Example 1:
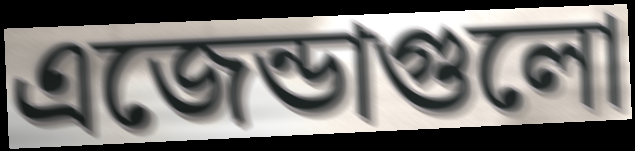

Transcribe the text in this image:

এজেন্ডাগুলো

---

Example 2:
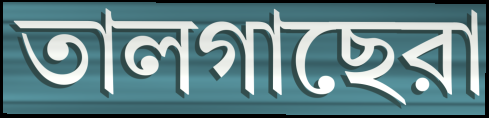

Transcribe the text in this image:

তালগাছেরা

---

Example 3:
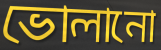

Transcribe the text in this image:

ভোলানো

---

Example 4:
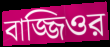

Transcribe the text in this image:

বাজ্জিওর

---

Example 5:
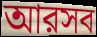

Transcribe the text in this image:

আরসব